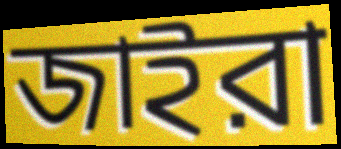
জাইরা